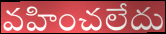
వహించలేదు